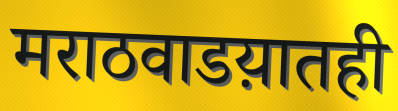
मराठवाडय़ातही